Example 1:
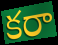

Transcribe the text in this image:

కరా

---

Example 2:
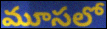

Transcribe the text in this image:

మూసలో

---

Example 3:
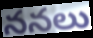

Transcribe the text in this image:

ననలు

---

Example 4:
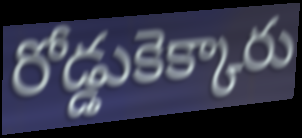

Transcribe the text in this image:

రోడ్డుకెక్కారు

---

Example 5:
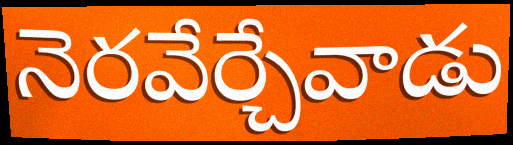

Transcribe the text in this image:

నెరవేర్చేవాడు